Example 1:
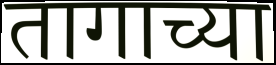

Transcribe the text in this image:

तागाच्या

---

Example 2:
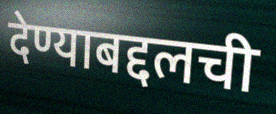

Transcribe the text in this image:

देण्याबद्दलची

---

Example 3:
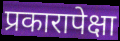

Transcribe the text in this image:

प्रकारापेक्षा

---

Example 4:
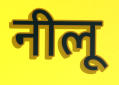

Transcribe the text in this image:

नीलू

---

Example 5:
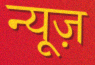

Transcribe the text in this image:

न्यूज़